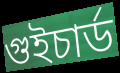
গুইচার্ড